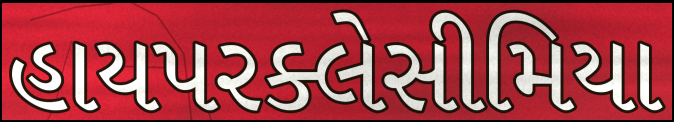
હાયપરક્લેસીમિયા